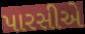
પારસીએ